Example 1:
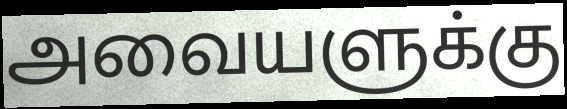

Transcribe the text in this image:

அவையளுக்கு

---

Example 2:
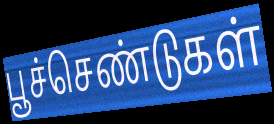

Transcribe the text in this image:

பூச்செண்டுகள்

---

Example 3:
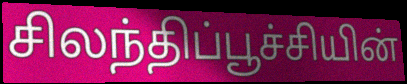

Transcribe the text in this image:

சிலந்திப்பூச்சியின்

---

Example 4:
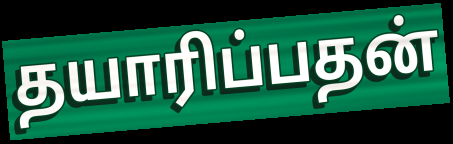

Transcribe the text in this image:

தயாரிப்பதன்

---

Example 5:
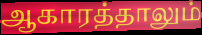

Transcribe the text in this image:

ஆகாரத்தாலும்